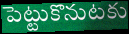
పెట్టుకొనుటకు